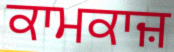
ਕਾਮਕਾਜ਼